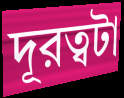
দূরত্বটা